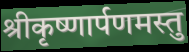
श्रीकृष्णार्पणमस्तु